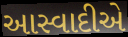
આસ્વાદીએ